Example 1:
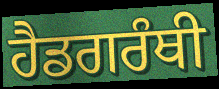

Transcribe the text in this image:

ਹੈਡਗਰੰਥੀ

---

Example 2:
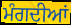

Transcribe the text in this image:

ਮੰਗਦੀਆਂ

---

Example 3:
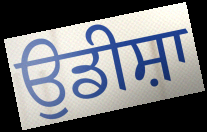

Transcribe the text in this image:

ਉਡੀਸ਼ਾ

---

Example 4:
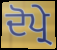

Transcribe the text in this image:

ਦੋਪ੍ਰੇ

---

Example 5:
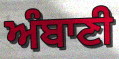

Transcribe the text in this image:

ਅੰਬਾਣੀ